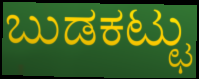
ಬುಡಕಟ್ಟು